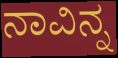
ನಾವಿನ್ನ